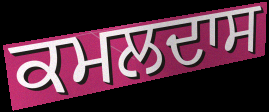
ਕਮਲਦਾਸ